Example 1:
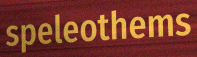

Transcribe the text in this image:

speleothems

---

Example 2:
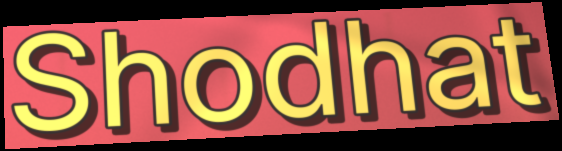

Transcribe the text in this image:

Shodhat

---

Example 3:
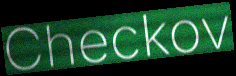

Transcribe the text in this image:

Checkov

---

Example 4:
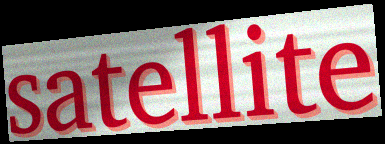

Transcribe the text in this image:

satellite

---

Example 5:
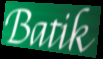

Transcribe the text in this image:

Batik